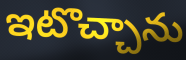
ఇటొచ్చాను